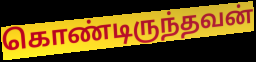
கொண்டிருந்தவன்